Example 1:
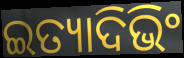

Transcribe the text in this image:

ଇତ୍ୟାଦିଭିଂ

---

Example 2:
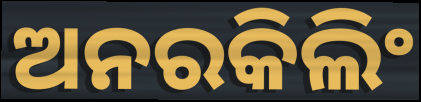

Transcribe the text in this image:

ଅନରକିଲିଂ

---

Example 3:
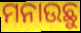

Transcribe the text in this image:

ମନାଉଛୁ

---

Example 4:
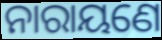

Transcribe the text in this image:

ନାରାୟଣେ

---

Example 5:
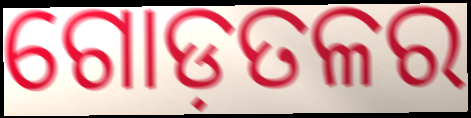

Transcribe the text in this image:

ଗୋଡ଼ତଳର